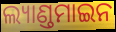
ଲ୍ୟାଣ୍ଡମାଇନ